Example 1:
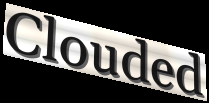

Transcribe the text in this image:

Clouded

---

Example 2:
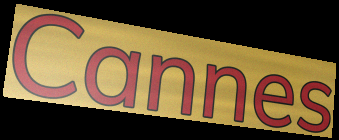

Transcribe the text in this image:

Cannes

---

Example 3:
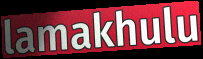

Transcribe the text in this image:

lamakhulu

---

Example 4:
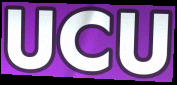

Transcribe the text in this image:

UCU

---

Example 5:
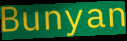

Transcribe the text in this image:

Bunyan